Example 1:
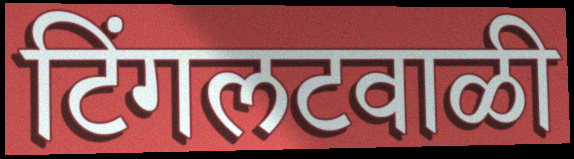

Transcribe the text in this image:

टिंगलटवाळी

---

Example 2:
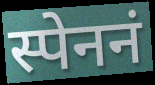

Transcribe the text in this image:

स्पेननं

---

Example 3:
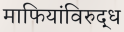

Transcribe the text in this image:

माफियांविरुद्ध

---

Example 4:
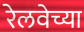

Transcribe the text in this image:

रेलवेच्या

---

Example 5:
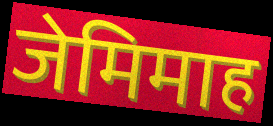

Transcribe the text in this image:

जेमिमाह